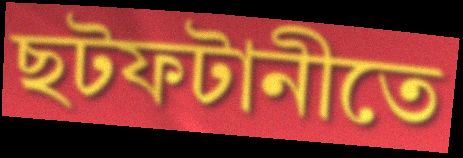
ছটফটানীতে